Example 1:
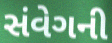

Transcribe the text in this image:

સંવેગની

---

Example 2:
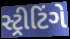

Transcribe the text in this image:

સ્ટ્રીટિંગે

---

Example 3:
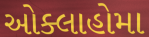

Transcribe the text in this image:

ઓક્લાહોમા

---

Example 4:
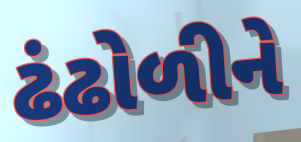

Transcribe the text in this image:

ઢંઢોળીને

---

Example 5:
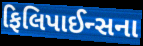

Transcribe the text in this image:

ફિલિપાઈન્સના